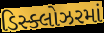
ડિસ્ક્લોઝરમાં